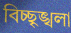
বিচ্ছৃঙ্খলা